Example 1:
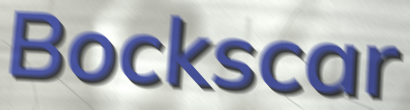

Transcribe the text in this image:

Bockscar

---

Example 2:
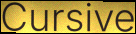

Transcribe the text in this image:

Cursive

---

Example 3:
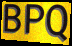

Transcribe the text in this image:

BPQ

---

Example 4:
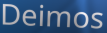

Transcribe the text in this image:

Deimos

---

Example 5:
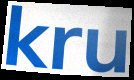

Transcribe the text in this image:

kru